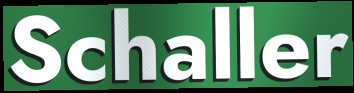
Schaller